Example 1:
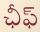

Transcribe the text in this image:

ఛీఫ్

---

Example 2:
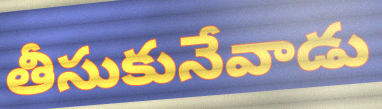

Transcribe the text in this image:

తీసుకునేవాడు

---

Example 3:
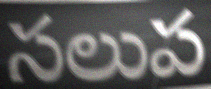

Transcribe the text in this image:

సలుప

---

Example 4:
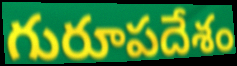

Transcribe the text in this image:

గురూపదేశం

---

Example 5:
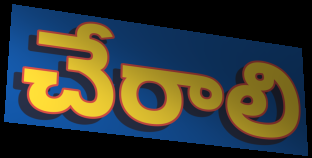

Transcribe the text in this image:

చేరాలి